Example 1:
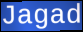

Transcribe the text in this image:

Jagad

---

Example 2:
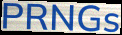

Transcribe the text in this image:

PRNGs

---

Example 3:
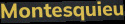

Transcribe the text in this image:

Montesquieu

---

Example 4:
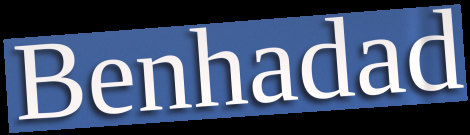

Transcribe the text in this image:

Benhadad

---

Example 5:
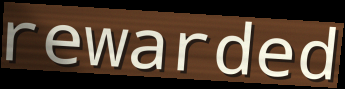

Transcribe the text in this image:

rewarded